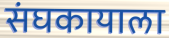
संघकायाला